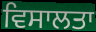
ਵਿਸਾਲਤਾ